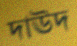
দাঊদ